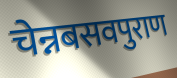
चेन्नबसवपुराण